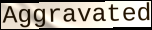
Aggravated